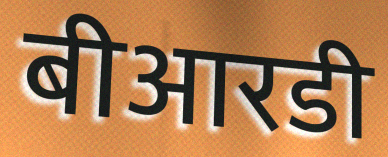
बीआरडी